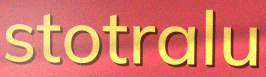
stotralu